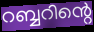
റബ്ബറിന്റെ